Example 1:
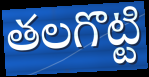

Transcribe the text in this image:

తలగొట్టి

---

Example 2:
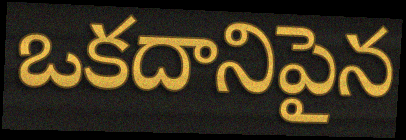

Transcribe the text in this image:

ఒకదానిపైన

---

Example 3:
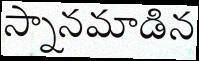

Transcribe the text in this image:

స్నానమాడిన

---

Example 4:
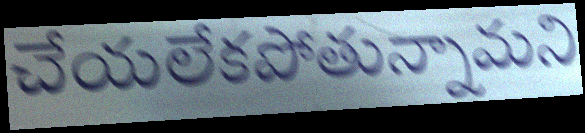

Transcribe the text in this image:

చేయలేకపోతున్నామని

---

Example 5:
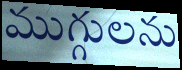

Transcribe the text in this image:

ముగ్గులను